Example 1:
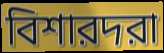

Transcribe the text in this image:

বিশারদরা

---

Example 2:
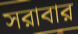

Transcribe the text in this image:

সরাবার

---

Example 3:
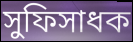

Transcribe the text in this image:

সুফিসাধক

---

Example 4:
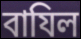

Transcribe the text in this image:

বাযিল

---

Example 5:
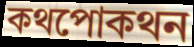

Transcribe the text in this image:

কথপোকথন